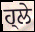
ਹ੍ਲੇ